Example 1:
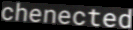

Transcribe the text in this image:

chenected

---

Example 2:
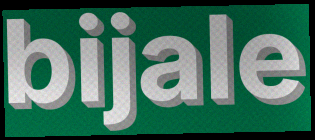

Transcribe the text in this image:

bijale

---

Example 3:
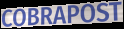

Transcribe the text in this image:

COBRAPOST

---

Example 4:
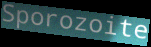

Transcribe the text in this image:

Sporozoite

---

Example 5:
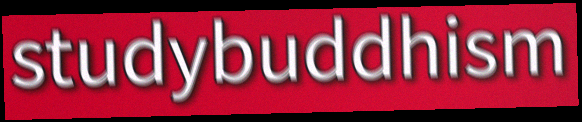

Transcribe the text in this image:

studybuddhism